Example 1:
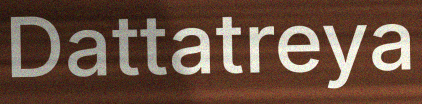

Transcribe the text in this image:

Dattatreya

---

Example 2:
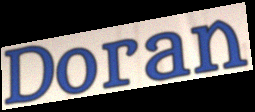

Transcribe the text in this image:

Doran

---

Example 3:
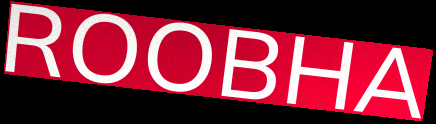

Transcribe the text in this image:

ROOBHA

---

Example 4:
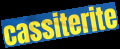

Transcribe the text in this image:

cassiterite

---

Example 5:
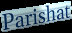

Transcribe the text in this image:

Parishat